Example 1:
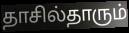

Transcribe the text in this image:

தாசில்தாரும்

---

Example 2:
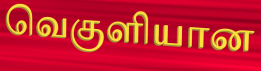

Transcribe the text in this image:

வெகுளியான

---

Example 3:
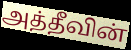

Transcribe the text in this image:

அத்தீவின்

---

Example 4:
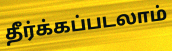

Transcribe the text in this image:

தீர்க்கப்படலாம்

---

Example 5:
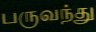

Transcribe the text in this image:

பருவந்து